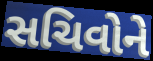
સચિવોને